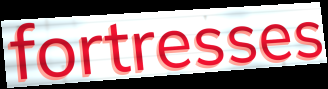
fortresses